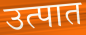
उत्पात